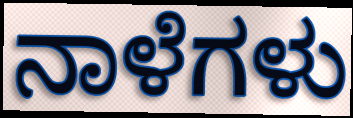
ನಾಳೆಗಳು